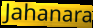
Jahanara